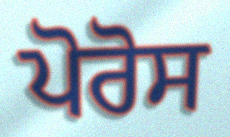
ਪੋਰੋਸ